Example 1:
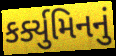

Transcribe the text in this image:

કર્ક્યુમિનનું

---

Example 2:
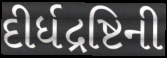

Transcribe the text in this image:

દીર્ધદ્રષ્ટિની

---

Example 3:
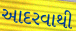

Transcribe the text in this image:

આદરવાથી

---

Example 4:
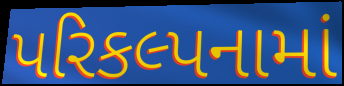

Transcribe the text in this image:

પરિકલ્પનામાં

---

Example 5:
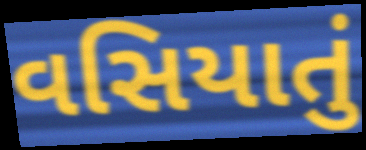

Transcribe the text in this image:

વસિયાતું